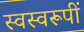
स्वस्वरूपीं